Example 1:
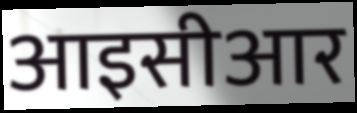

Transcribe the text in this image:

आइसीआर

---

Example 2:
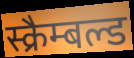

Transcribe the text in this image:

स्क्रैम्बल्ड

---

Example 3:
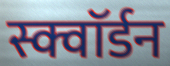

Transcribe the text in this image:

स्क्वॉर्डन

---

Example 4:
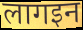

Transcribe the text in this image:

लागइन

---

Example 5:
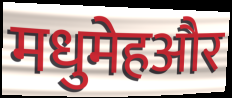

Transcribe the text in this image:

मधुमेहऔर